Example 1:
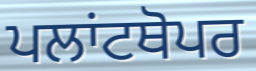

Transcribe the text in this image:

ਪਲਾਂਟਥੋਪਰ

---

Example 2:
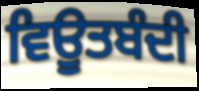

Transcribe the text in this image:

ਵਿਊਤਬੰਦੀ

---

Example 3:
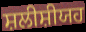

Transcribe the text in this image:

ਸ਼ਲੀਸ਼ੀਯਹ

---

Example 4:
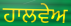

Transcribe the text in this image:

ਹਾਲਵੇਅ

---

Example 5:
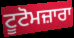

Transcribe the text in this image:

ਟੂਟੋਮਜ਼ਾਰਾ